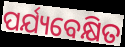
ପର୍ଯ୍ୟବେକ୍ଷିତ